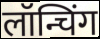
लॉन्चिंग